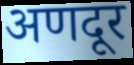
अणदूर